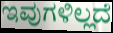
ಇವುಗಳಿಲ್ಲದೆ